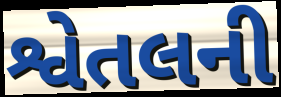
શ્વેતલની